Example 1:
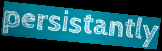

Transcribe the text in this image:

persistantly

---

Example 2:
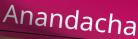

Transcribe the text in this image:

Anandacha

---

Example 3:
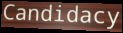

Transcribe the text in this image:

Candidacy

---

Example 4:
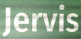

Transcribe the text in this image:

Jervis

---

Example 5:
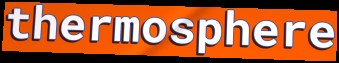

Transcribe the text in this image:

thermosphere